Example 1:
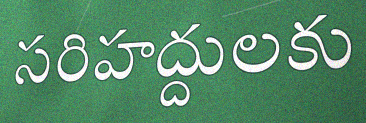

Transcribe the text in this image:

సరిహద్దులకు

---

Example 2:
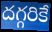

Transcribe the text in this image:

దగ్గరికే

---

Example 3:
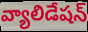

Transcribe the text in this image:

వ్యాలిడేషన్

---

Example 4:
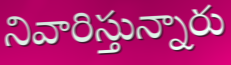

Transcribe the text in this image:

నివారిస్తున్నారు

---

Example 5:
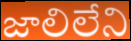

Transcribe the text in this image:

జాలిలేని